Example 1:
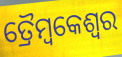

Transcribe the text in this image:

ତ୍ରୈମ୍ବକେଶ୍ୱର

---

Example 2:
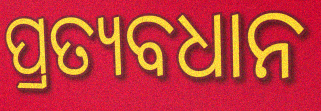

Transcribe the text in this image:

ପ୍ରତ୍ୟବଧାନ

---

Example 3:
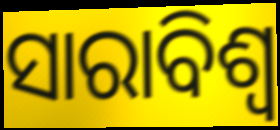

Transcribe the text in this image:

ସାରାବିଶ୍ବ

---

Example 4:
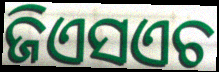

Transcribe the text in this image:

ଜିଏସଏଚ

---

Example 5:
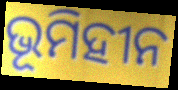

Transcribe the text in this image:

ଭୂମିହୀନ